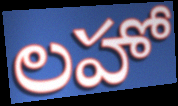
లహో